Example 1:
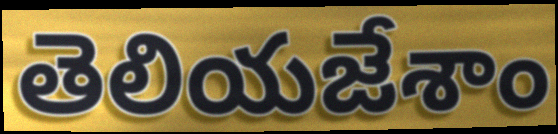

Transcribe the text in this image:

తెలియజేశాం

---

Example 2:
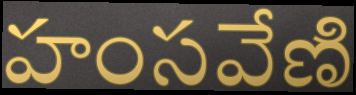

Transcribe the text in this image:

హంసవేణి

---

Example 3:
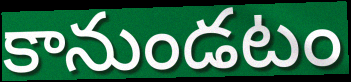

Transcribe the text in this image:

కానుండటం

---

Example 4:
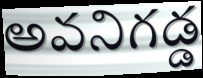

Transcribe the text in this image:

అవనిగడ్డ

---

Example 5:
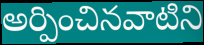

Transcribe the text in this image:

అర్పించినవాటిని